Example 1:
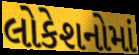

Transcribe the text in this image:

લોકેશનોમાં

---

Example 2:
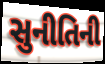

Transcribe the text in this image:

સુનીતિની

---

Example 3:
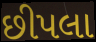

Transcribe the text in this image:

છીપલા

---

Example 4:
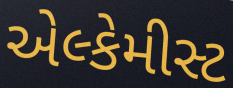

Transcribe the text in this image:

એલ્કેમીસ્ટ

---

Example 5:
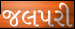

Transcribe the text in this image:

જલપરી